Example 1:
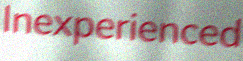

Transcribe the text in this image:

Inexperienced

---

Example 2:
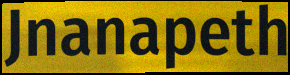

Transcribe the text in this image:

Jnanapeth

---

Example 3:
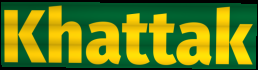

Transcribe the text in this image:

Khattak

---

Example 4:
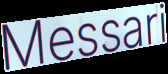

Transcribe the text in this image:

Messari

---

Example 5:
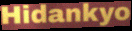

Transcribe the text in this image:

Hidankyo